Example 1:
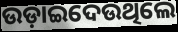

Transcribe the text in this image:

ଉଡ଼ାଇଦେଉଥିଲେ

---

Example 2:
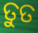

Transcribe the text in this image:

ତୁତ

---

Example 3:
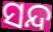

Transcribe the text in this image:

ସନ୍ଦ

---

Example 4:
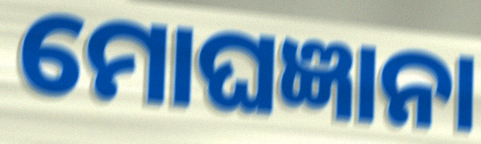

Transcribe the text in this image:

ମୋଘଜ୍ଞାନା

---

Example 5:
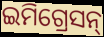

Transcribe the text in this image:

ଇମିଗ୍ରେସନ୍